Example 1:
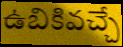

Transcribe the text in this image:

ఉబికివచ్చే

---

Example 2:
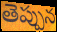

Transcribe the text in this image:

తెప్పున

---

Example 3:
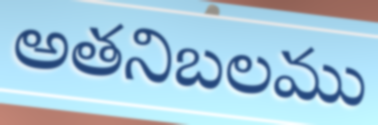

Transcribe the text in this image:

అతనిబలము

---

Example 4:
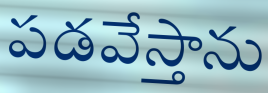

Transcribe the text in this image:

పడవేస్తాను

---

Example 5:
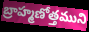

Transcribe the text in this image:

బ్రాహ్మణోత్తముని